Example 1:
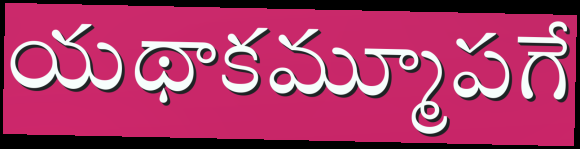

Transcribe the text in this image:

యథాకమ్మూపగే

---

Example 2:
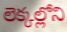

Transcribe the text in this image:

లెక్కల్లోని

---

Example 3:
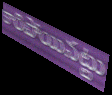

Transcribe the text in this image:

కారిపోయినట్టు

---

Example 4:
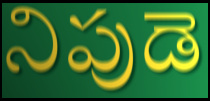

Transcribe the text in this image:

నిపుడె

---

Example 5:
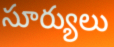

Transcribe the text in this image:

సూర్యులు